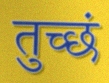
तुच्छं